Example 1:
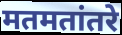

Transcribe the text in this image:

मतमतांतरे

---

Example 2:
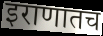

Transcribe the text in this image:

इराणातच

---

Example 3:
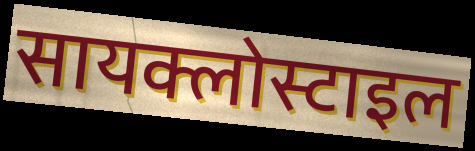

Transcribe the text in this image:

सायक्लोस्टाइल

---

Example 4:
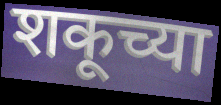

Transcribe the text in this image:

शकूच्या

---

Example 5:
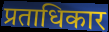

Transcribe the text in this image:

प्रताधिकार